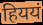
हिययं